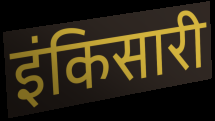
इंकिसारी